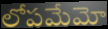
లోపమేమో